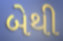
બેથી